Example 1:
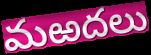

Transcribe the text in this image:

మఱదలు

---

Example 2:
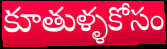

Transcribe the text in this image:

కూతుళ్ళకోసం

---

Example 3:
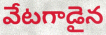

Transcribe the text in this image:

వేటగాడైన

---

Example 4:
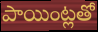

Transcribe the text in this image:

పాయింట్లతో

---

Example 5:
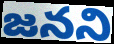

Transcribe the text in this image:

జనని